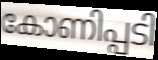
കോണിപ്പടി